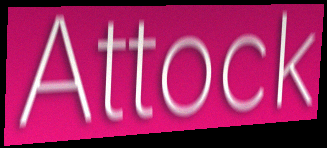
Attock